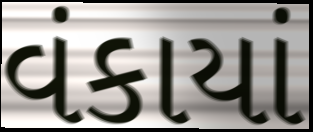
વંકાયાં